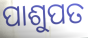
ପାଶୁପତ